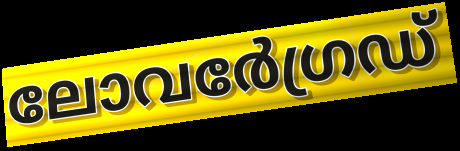
ലോവർേഗ്രഡ്